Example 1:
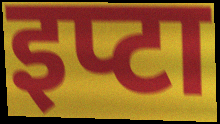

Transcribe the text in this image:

इप्टा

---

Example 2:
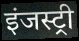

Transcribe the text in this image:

इंजस्ट्री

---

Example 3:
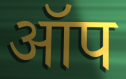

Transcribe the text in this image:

ऑप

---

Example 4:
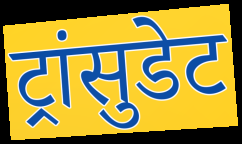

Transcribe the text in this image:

ट्रांसुडेट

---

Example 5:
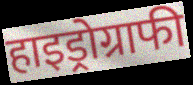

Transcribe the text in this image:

हाइड्रोग्राफी